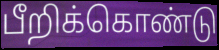
பீறிக்கொண்டு